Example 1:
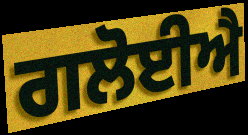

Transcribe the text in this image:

ਗਲੋਈਐ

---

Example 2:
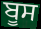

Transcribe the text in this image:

ਬੂਸ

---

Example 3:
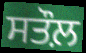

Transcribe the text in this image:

ਸਤੌਲ਼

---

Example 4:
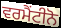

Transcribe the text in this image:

ਵਰਮੈਂਟੀਨੋ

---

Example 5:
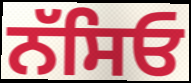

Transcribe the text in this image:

ਨੱਸਿਓ